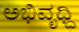
ಅಭಿವೃಧ್ದಿ